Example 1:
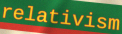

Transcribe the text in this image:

relativism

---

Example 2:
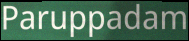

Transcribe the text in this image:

Paruppadam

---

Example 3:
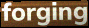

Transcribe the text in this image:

forging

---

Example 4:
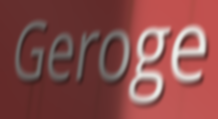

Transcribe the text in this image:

Geroge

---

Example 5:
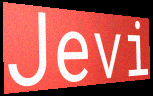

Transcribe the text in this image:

Jevi